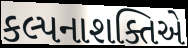
કલ્પનાશક્તિએ